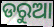
ଡରୁଆ